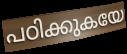
പഠിക്കുകയേ